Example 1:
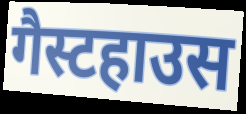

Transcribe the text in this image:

गैस्टहाउस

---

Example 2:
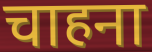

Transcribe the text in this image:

चाहना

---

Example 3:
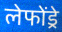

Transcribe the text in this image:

लेफोंड्रे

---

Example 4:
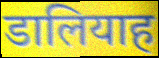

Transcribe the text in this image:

डालियाह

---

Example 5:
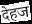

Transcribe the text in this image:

देहज